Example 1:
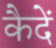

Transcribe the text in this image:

कैदें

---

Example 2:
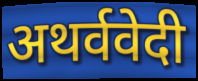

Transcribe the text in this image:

अथर्ववेदी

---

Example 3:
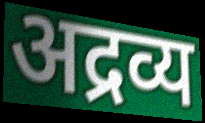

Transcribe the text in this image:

अद्रव्य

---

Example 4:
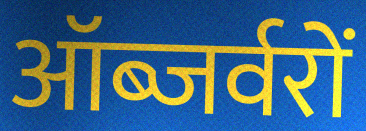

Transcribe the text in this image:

ऑब्जर्वरों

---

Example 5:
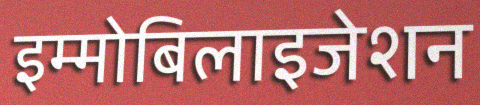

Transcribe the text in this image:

इम्मोबिलाइजेशन